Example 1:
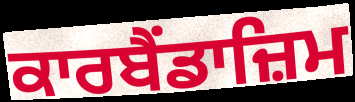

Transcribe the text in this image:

ਕਾਰਬੈਂਡਾਜ਼ਿਮ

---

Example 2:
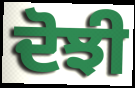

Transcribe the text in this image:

ਦੋਝੀ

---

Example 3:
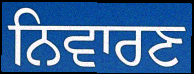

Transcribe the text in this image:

ਨਿਵਾਰਣ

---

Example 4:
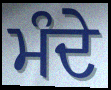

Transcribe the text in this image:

ਮੰਦੇ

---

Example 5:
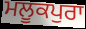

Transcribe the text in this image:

ਮਲੂਕਪੁਰਾ